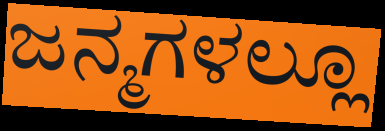
ಜನ್ಮಗಳಲ್ಲೂ